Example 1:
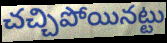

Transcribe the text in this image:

చచ్చిపోయినట్టు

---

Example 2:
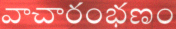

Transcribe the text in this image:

వాచారంభణం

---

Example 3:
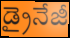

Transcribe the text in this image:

డ్రైనేజీ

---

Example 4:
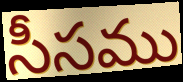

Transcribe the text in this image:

సీసము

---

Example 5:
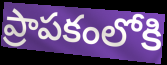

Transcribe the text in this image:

ప్రాపకంలోకి